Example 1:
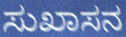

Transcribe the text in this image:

ಸುಖಾಸನ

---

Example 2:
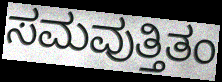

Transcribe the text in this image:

ಸಮವುತ್ತಿತಂ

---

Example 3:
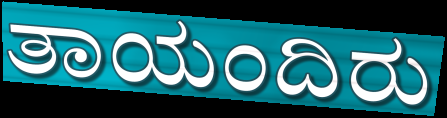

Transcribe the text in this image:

ತಾಯಂದಿರು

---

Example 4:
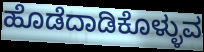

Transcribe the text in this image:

ಹೊಡೆದಾಡಿಕೊಳ್ಳುವ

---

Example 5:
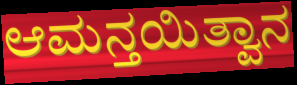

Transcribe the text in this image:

ಆಮನ್ತಯಿತ್ವಾನ